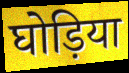
घोड़िया